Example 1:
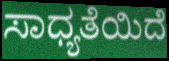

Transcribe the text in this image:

ಸಾಧ್ಯತೆಯಿದೆ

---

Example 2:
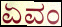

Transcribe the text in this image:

ಏವಂ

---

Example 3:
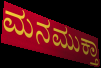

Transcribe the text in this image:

ಮನಮುಕ್ತಾ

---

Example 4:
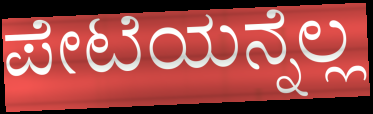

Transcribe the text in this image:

ಪೇಟೆಯನ್ನೆಲ್ಲ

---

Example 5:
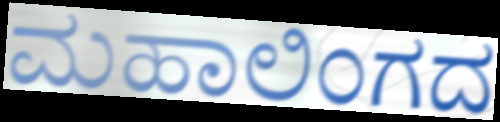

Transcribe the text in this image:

ಮಹಾಲಿಂಗದ